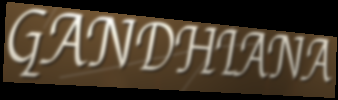
GANDHIANA